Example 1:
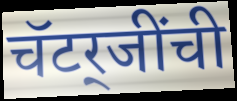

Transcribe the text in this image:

चॅटर्जींची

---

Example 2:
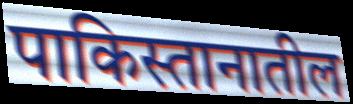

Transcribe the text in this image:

पाकिस्‍तानातील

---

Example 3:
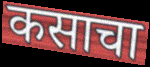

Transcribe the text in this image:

कसाचा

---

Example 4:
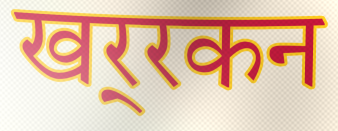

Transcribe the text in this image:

खर्रकन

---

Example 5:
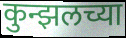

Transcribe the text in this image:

कुन्झलच्या